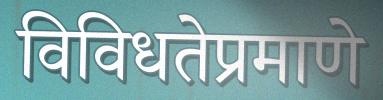
विविधतेप्रमाणे